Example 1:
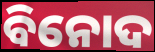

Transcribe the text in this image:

ବିନୋଦ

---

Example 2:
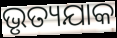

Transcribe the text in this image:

ଭୃତ୍ୟଯାକ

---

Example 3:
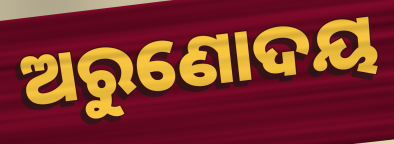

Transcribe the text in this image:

ଅରୁଣୋଦୟ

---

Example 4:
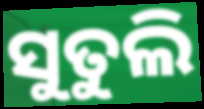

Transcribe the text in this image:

ସୁତୁଲି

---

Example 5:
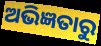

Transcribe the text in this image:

ଅଭିଜ୍ଞତାରୁ